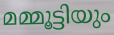
മമ്മൂട്ടിയും